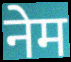
नेम